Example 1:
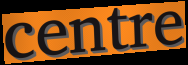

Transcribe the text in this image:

centre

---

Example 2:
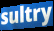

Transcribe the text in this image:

sultry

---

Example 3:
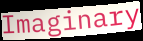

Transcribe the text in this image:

Imaginary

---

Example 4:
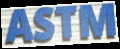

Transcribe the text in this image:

ASTM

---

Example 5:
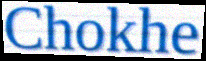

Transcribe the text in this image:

Chokhe